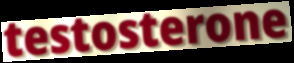
testosterone